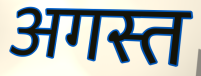
अगस्‍त